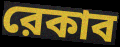
রেকাব